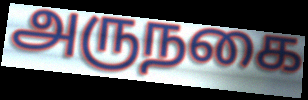
அருநகை